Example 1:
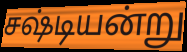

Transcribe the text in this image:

சஷ்டியன்று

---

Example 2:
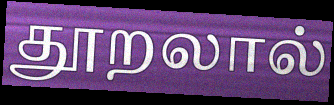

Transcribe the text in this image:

தூறலால்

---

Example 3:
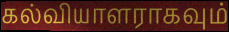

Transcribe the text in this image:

கல்வியாளராகவும்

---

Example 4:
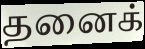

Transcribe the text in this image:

தனைக்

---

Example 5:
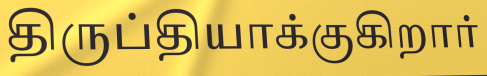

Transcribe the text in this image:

திருப்தியாக்குகிறார்